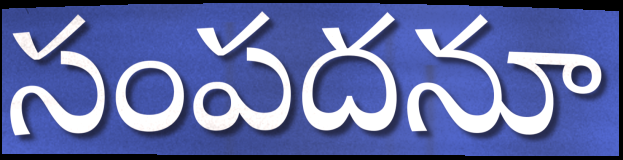
సంపదనూ